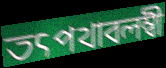
তৎপথাবলম্বী